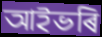
আইভৰি